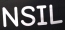
NSIL